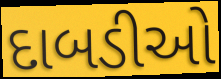
દાબડીઓ